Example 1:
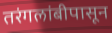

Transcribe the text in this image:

तरंगलांबीपासून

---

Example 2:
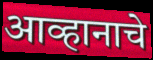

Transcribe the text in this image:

आव्हानाचे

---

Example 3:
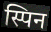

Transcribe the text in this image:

स्पिन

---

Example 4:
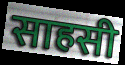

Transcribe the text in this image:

साहसी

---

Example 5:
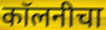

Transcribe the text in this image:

कॉलनीचा